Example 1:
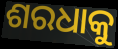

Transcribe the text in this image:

ଶରଧାକୁ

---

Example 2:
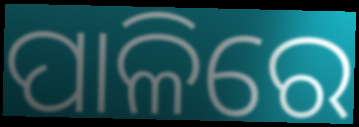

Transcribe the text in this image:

ପାଳିରେ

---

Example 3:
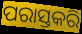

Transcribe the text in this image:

ପରାସ୍ତକରି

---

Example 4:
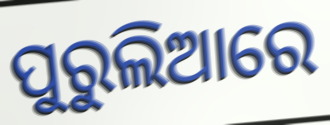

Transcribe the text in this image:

ପୁରୁଲିଆରେ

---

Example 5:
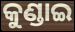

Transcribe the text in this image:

କୁଣ୍ଡାଇ